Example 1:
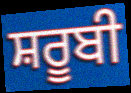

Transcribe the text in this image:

ਸ਼ਰੂਬੀ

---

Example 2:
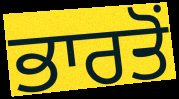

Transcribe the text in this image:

ਭਾਰਤੋਂ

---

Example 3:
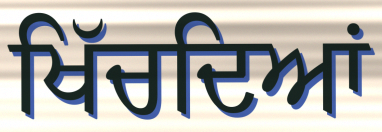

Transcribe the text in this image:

ਖਿੱਚਦਿਆਂ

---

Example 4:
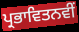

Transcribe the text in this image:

ਪ੍ਰਭਾਵਿਤਨਵੀਂ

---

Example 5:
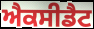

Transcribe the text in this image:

ਐਕਸੀਡੈਟ